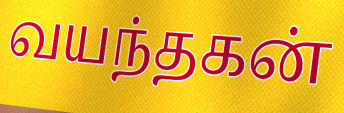
வயந்தகன்